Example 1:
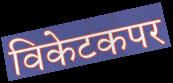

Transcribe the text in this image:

विकेटकपर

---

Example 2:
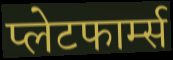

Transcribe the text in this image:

प्लेटफार्म्स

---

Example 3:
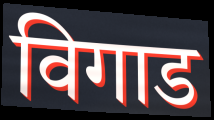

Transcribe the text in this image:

विगाड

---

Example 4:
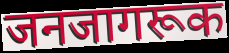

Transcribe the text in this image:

जनजागरूक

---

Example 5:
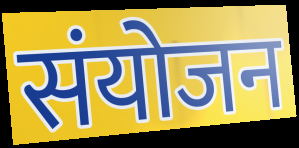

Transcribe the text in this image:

संयोजन